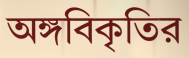
অঙ্গবিকৃতির